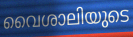
വൈശാലിയുടെ